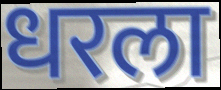
धरला